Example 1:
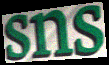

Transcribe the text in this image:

sns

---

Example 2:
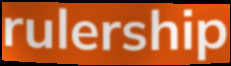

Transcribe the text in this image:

rulership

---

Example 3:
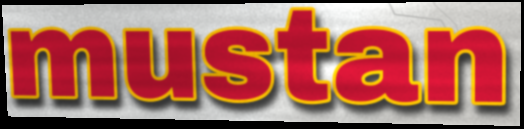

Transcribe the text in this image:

mustan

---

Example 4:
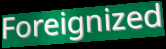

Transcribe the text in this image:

Foreignized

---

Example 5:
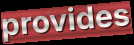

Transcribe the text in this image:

provides